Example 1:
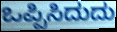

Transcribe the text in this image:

ಒಪ್ಪಿಸಿದುದು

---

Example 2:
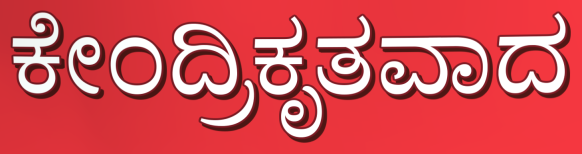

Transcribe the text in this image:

ಕೇಂದ್ರಿಕೃತವಾದ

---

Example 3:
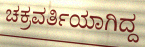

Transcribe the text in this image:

ಚಕ್ರವರ್ತಿಯಾಗಿದ್ದ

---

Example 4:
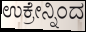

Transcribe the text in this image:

ಉಕ್ರೇನ್ನಿಂದ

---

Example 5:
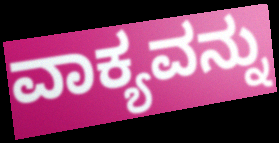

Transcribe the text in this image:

ವಾಕ್ಯವನ್ನು